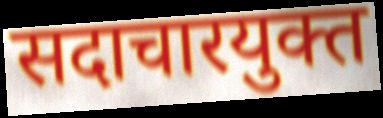
सदाचारयुक्त